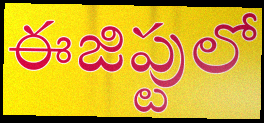
ఈజిప్టులో